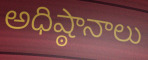
అధిష్ఠానాలు